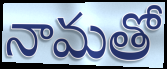
నామతో